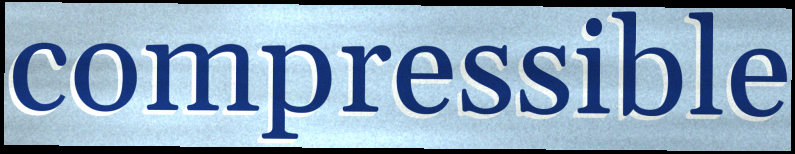
compressible